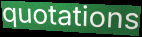
quotations